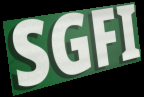
SGFI